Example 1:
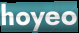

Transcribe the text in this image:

hoyeo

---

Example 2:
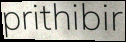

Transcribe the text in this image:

prithibir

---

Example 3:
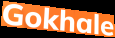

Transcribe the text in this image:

Gokhale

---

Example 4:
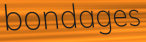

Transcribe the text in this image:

bondages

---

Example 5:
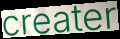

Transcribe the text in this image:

creater